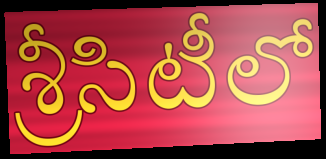
శ్రీసిటీలో